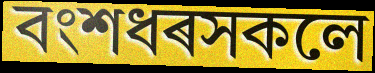
বংশধৰসকলে